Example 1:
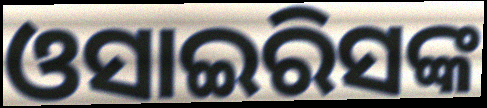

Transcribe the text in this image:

ଓସାଇରିସଙ୍କ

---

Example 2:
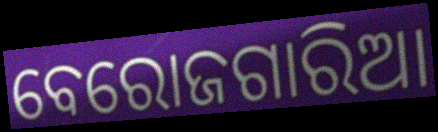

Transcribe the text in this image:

ବେରୋଜଗାରିଆ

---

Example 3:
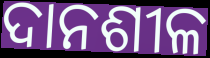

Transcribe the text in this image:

ଦାନଶୀଳ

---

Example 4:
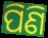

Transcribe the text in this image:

ପିଣି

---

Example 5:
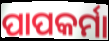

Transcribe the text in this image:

ପାପକର୍ମା